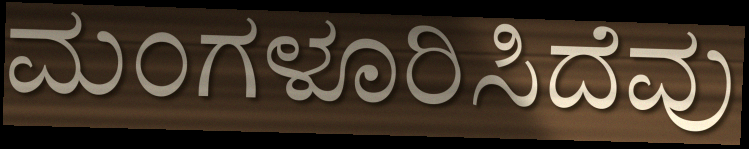
ಮಂಗಳೂರಿಸಿದೆವು